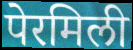
पेरमिली